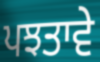
ਪਝਤਾਵੇ